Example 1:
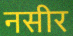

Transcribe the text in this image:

नसीर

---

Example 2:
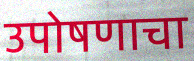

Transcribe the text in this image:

उपोषणाचा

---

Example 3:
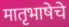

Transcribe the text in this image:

मातृभाषेचे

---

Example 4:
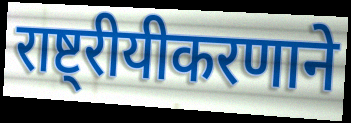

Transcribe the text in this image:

राष्ट्रीयीकरणाने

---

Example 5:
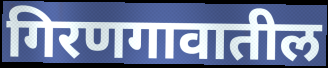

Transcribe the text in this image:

गिरणगावातील